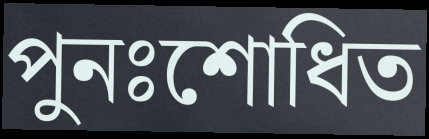
পুনঃশোধিত